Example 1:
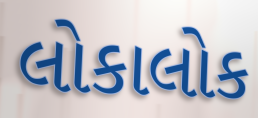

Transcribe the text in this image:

લોકાલોક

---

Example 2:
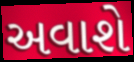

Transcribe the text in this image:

અવાશે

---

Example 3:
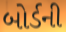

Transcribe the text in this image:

બોર્ડની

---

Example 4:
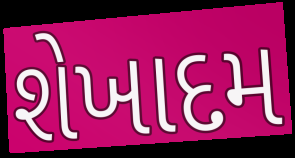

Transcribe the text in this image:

શેખાદમ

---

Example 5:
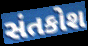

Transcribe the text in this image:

સંતકોશ